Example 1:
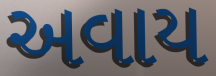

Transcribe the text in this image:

અવાય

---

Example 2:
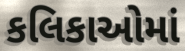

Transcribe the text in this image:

કલિકાઓમાં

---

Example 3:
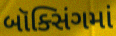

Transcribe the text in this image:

બૉક્સિંગમાં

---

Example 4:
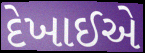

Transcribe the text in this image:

દેખાઈએ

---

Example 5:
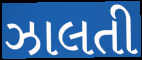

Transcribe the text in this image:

ઝાલતી